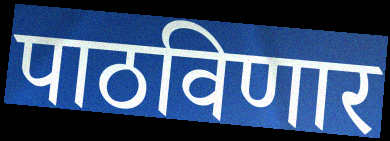
पाठविणार